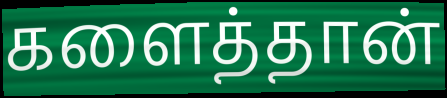
களைத்தான்